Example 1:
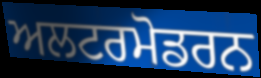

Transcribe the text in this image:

ਅਲਟਰਮੋਡਰਨ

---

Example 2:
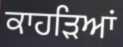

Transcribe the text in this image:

ਕਾਹੜਿਆਂ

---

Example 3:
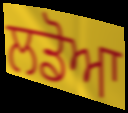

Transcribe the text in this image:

ਲਡੋਆ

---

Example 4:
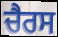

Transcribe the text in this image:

ਚੈਰਸ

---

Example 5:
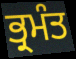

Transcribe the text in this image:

ਭ੍ਰਮੰਤ